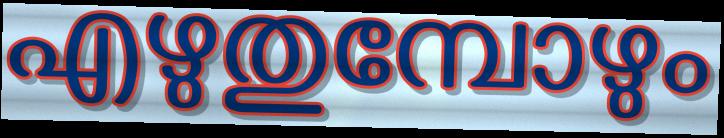
എഴുതുമ്പോഴും